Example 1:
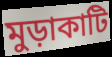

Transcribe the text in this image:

মুড়াকাটি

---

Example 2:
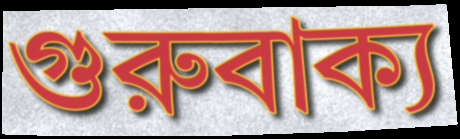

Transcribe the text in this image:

গুরুবাক্য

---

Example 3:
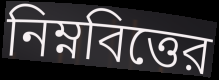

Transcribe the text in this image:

নিম্নবিত্তের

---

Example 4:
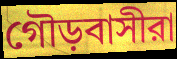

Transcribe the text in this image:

গৌড়বাসীরা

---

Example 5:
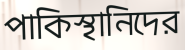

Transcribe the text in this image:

পাকিস্থানিদের